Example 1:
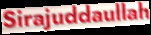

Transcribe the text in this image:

Sirajuddaullah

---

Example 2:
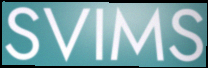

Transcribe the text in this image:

SVIMS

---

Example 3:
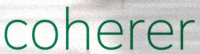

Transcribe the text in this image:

coherer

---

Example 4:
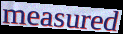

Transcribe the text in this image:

measured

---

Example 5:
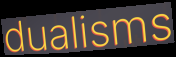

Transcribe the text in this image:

dualisms